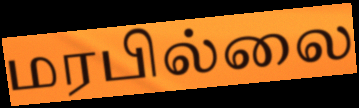
மரபில்லை